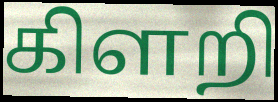
கிளறி